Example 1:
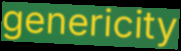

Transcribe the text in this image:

genericity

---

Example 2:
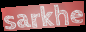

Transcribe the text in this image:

sarkhe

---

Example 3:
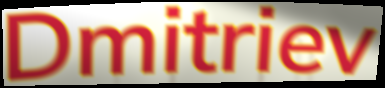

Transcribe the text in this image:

Dmitriev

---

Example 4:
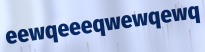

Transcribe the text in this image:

eewqeeeqwewqewq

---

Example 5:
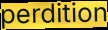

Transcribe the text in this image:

perdition